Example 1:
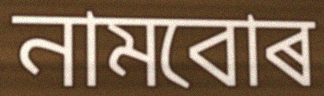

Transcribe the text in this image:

নামবোৰ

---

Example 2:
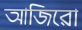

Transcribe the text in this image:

আজিৱো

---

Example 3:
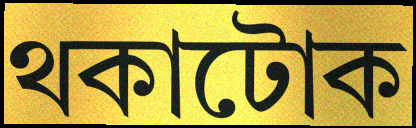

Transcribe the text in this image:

থকাটোক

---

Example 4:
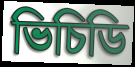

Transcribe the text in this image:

ভিচিডি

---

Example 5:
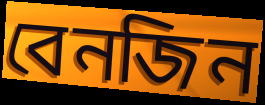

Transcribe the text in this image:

বেনজিন